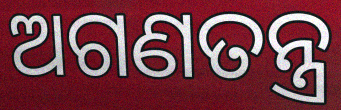
ଅଗଣତନ୍ତ୍ର